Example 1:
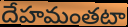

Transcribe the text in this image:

దేహమంతటా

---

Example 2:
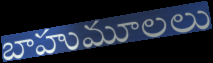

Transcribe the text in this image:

బాహుమూలలు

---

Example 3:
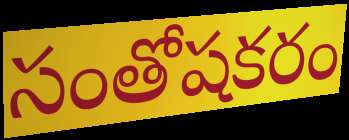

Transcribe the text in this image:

సంతోషకరం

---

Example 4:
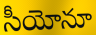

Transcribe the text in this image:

సీయోనూ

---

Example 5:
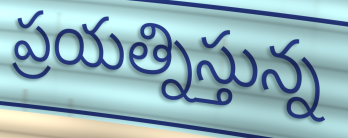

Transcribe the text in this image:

ప్రయత్నిస్తున్న